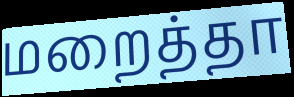
மறைத்தா